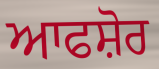
ਆਫਸ਼ੋਰ